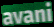
avani